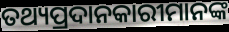
ତଥ୍ୟପ୍ରଦାନକାରୀମାନଙ୍କ